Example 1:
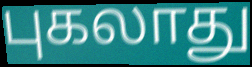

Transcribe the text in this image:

புகலாது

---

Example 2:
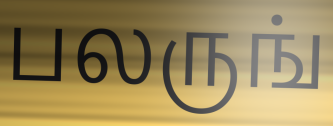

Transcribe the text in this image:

பலருங்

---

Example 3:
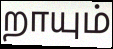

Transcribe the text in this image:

றாயும்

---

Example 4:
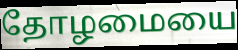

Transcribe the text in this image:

தோழமையை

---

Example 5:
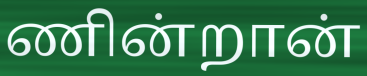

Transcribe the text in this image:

ணின்றான்